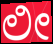
ಲೀ